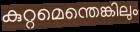
കുറ്റമെന്തെങ്കിലും